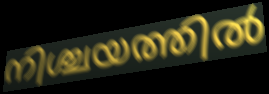
നിശ്ചയത്തിൽ